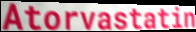
Atorvastatin